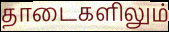
தாடைகளிலும்